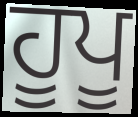
ਹੂਪੂ